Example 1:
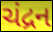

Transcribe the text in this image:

ચંદ્રન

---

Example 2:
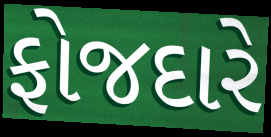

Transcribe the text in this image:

ફોજદારે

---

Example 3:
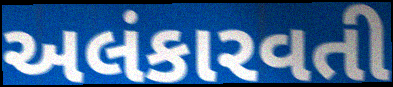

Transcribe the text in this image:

અલંકારવતી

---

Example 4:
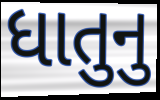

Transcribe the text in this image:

ધાતુનુ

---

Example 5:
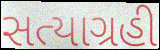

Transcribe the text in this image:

સત્યાગ્રહી